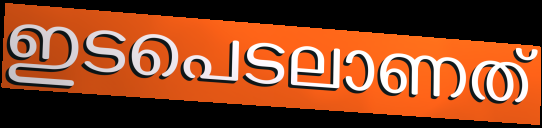
ഇടപെടലാണത്